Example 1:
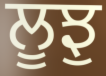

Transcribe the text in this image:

ਲੂਝੁ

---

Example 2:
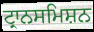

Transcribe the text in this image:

ਟ੍ਰਾਨਸਮਿਸ਼ਨ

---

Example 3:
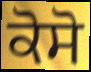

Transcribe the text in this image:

ਕੋਸੋ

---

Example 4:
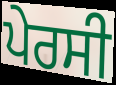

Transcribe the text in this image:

ਪੇਰਸੀ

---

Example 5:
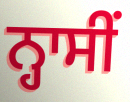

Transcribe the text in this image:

ਨ੍ਹਾਸੀਂ